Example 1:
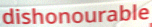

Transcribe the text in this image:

dishonourable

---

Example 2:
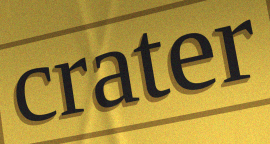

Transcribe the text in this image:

crater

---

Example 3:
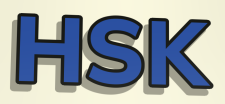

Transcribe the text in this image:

HSK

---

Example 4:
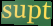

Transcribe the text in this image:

supt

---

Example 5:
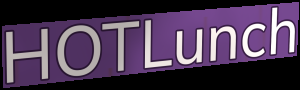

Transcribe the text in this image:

HOTLunch